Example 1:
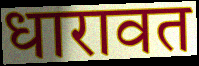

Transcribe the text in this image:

धारावत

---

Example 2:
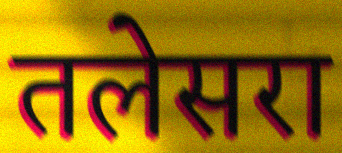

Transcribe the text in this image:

तलेसरा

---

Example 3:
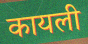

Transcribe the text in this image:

कायली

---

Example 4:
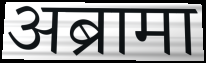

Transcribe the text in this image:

अब्रामा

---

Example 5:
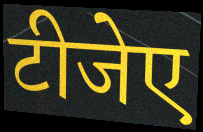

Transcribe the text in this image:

टीजेए